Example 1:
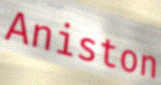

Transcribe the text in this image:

Aniston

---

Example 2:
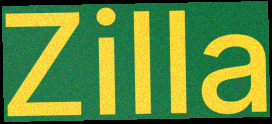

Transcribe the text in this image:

Zilla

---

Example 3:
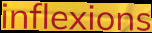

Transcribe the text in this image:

inflexions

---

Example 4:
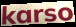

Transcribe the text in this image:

karso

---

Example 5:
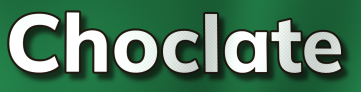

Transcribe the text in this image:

Choclate